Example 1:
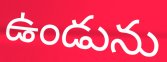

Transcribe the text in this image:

ఉండును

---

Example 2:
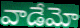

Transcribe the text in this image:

వాడేమో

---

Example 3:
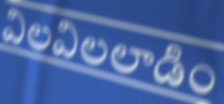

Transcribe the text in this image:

విలవిలలాడిం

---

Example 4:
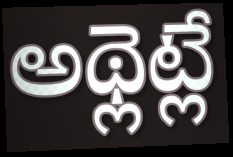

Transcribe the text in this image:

అథ్లెట్లే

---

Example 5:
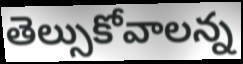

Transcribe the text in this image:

తెల్సుకోవాలన్న